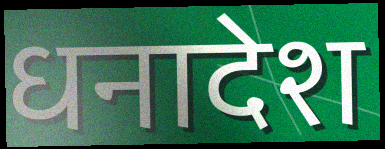
धनादेश